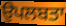
ਉਪਲਬਤਾ